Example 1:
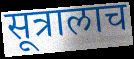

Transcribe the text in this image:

सूत्रालाच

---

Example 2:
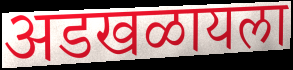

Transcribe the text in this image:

अडखळायला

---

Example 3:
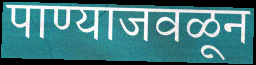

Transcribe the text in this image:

पाण्याजवळून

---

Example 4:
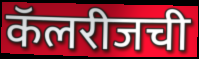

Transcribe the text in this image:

कॅलरीजची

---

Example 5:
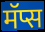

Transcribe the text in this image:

मॅप्स